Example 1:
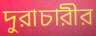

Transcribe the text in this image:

দুরাচারীর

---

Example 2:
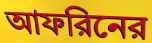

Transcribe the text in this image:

আফরিনের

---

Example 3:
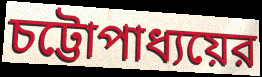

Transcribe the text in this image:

চট্টোপাধ্যয়ের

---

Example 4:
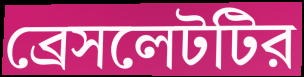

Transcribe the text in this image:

ব্রেসলেটটির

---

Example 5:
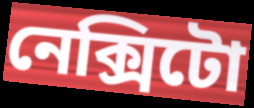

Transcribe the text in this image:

নেক্সিটো